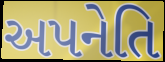
અપનેતિ